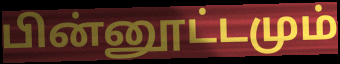
பின்னூட்டமும்